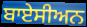
ਬਾਏਸੀਅਨ